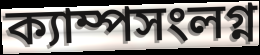
ক্যাম্পসংলগ্ন